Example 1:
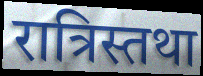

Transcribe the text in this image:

रात्रिस्तथा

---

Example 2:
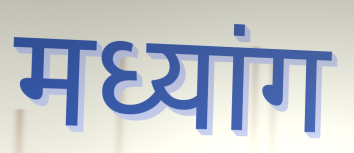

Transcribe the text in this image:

मध्यांग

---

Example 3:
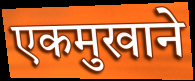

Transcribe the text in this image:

एकमुखाने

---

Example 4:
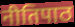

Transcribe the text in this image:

नीतिपाठ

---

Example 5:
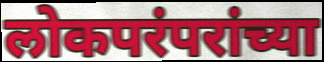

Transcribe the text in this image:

लोकपरंपरांच्या